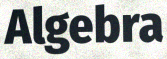
Algebra